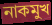
নাকমুখ